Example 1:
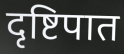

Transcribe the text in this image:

दृष्टिपात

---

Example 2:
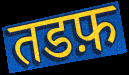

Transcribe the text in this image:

तडफ़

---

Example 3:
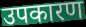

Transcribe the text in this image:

उपकारण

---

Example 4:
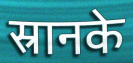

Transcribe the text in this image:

स्रानके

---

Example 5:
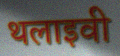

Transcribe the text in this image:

थलाइवी